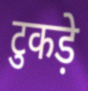
टुकड़े